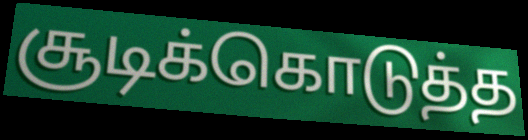
சூடிக்கொடுத்த